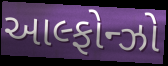
આલ્ફોન્ઝો